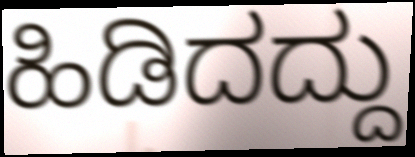
ಹಿಡಿದದ್ದು